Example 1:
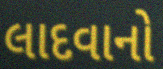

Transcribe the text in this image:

લાદવાનો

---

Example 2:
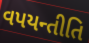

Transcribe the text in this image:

વપયન્તીતિ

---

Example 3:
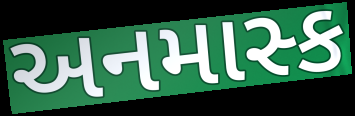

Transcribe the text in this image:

અનમાસ્ક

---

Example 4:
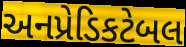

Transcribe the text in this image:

અનપ્રેડિકટેબલ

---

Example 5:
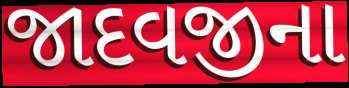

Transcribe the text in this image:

જાદવજીના